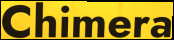
Chimera